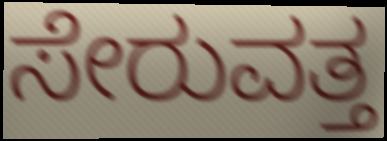
ಸೇರುವತ್ತ